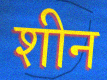
शीन